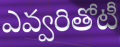
ఎవ్వరితోటీ